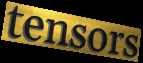
tensors